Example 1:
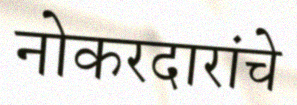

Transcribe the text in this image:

नोकरदारांचे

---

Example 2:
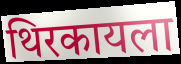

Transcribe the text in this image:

थिरकायला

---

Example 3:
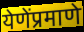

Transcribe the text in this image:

येणेंप्रमाणे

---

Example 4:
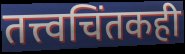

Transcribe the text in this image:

तत्त्वचिंतकही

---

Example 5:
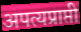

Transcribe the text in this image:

अपत्यप्राप्ती